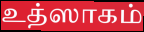
உத்ஸாகம்